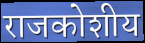
राजकोशीय